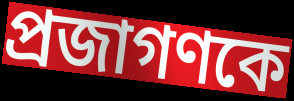
প্রজাগণকে